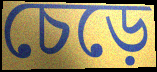
চেড়ে